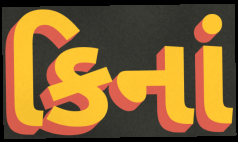
કિનાં